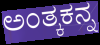
ಅಂತ್ಕಕನ್ನ